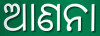
ଆଣନା